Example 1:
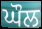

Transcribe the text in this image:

ਘੌਲ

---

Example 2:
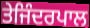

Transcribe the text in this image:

ਤੇਜਿੰਦਰਪਾਲ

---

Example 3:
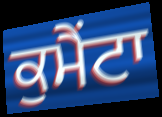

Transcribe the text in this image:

ਕੁਮੈਂਟਾ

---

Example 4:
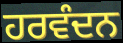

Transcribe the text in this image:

ਹਰਵੰਦਨ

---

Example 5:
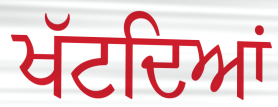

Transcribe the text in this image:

ਖੱਟਦਿਆਂ